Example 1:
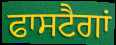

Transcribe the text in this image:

ਫਾਸਟੈਗਾਂ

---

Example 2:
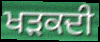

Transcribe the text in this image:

ਖੜਕਦੀ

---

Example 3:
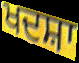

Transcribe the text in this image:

ਖਦਸ਼ਾ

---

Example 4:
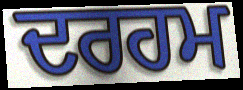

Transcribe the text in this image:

ਦਰਹਮ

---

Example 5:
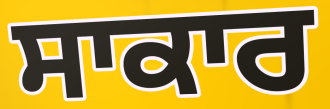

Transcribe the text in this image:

ਸਾਕਾਰ